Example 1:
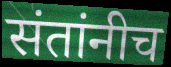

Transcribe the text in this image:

संतांनीच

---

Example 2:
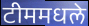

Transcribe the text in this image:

टीममधले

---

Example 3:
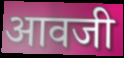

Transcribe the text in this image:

आवजी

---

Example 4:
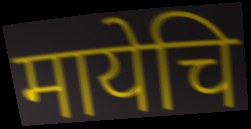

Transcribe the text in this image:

मायेचि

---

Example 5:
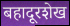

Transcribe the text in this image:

बहादूरशेख